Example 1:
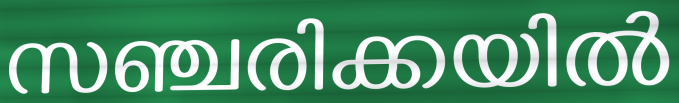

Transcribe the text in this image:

സഞ്ചരിക്കയിൽ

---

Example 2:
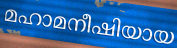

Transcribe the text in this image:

മഹാമനീഷിയായ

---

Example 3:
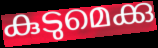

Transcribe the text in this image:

കുടുമെക്കു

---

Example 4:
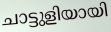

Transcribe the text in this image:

ചാട്ടുളിയായി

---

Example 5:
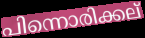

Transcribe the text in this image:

പിന്നൊരിക്കല്